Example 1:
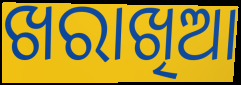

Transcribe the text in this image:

ଖରାଖିଆ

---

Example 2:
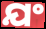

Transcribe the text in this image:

ଯଂ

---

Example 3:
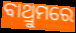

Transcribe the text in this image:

ବାଥ୍ରୁମରେ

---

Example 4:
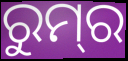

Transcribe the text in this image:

ରୁମ୍‌ର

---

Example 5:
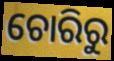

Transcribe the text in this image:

ଚୋରିରୁ